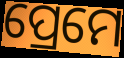
ପ୍ରେମେ